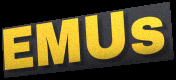
EMUs